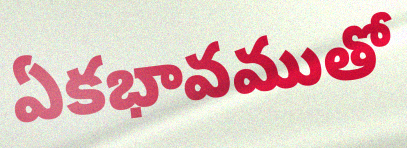
ఏకభావముతో